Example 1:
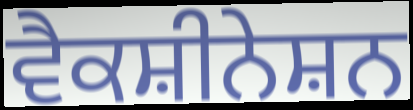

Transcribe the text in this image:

ਵੈਕਸ਼ੀਨੇਸ਼ਨ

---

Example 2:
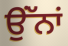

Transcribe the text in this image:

ਉਂੱਨਾਂ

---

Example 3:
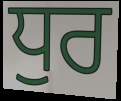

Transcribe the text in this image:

ਧੁਰ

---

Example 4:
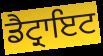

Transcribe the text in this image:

ਡੈਟ੍ਰਾਇਟ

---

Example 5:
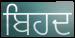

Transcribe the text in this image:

ਬਿਹਦ